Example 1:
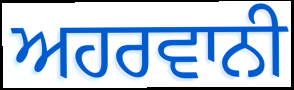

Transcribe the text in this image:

ਅਹਰਵਾਨੀ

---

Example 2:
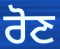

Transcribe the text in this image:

ਰੋਣ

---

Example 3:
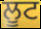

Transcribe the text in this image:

ਲੂਟ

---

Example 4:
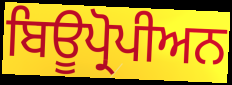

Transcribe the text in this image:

ਬਿਊਪ੍ਰੋਪੀਅਨ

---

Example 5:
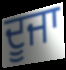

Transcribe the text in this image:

ਦੂਜਾ